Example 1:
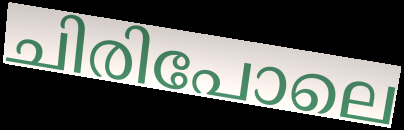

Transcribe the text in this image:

ചിരിപോലെ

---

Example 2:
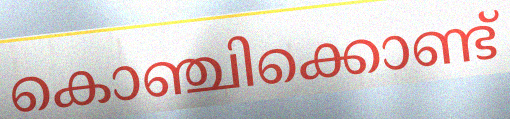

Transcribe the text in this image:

കൊഞ്ചിക്കൊണ്ട്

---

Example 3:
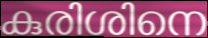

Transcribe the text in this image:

കുരിശിനെ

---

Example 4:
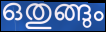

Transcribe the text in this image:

ഒതുങ്ങും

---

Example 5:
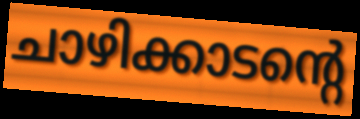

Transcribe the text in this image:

ചാഴിക്കാടന്റെ